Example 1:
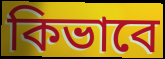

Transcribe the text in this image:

কিভাবে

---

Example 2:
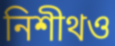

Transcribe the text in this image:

নিশীথও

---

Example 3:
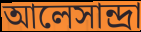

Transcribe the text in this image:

আলেসান্দ্রা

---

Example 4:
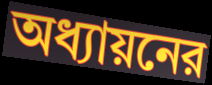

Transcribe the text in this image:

অধ্যায়নের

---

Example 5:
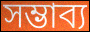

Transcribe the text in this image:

সম্ভাব্য